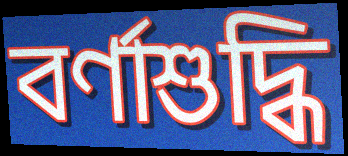
বর্ণাশুদ্ধি